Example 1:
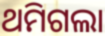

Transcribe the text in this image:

ଥମିଗଲା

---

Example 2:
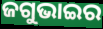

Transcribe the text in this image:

ଜଗୁଭାଇର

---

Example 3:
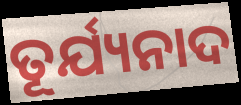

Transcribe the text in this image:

ତୂର୍ଯ୍ୟନାଦ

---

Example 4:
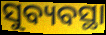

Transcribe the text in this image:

ସୁବ୍ୟବସ୍ଥା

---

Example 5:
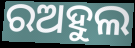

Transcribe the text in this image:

ରଅହୁଲ